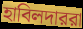
হাবিলদাররা